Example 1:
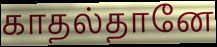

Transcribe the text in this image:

காதல்தானே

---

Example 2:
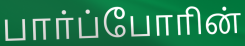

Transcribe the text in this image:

பார்ப்போரின்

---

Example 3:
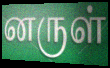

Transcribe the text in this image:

னருள்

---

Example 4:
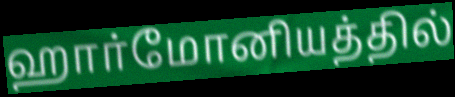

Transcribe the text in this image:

ஹார்மோனியத்தில்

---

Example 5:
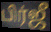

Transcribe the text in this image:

பிர்ஜீ